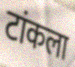
टांकला